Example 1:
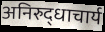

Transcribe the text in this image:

अनिरुद्धाचार्य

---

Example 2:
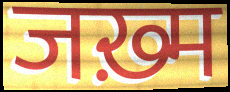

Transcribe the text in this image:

जख़्म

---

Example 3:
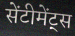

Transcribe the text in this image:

सेंटीमेंट्स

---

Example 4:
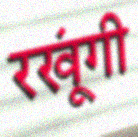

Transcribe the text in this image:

रखूंगी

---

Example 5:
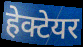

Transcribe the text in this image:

हेक्टेयर